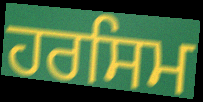
ਹਰਸਿਮ